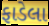
ફાડેલા